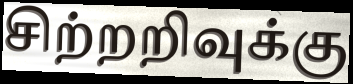
சிற்றறிவுக்கு